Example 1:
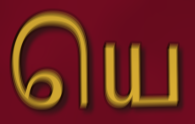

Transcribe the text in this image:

யெ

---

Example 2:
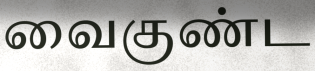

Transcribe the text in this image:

வைகுண்ட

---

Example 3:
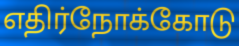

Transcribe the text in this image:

எதிர்நோக்கோடு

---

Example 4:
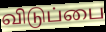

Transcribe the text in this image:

விடுப்பை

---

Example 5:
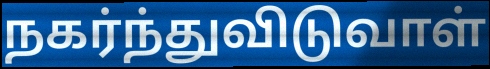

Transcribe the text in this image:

நகர்ந்துவிடுவாள்